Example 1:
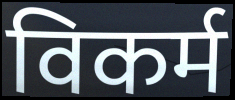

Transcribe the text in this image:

विकर्म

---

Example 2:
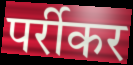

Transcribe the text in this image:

पर्रीकर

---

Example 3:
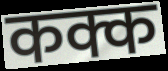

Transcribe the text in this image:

कक्क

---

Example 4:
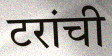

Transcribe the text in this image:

टरांची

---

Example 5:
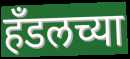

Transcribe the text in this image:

हँडलच्या